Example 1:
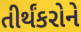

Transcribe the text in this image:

તીર્થંકરોને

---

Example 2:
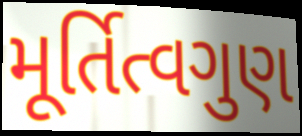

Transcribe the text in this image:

મૂર્તિત્વગુણ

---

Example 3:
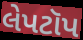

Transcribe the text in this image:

લેપટૉપ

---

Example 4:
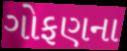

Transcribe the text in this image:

ગોફણના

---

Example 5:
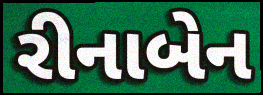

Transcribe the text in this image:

રીનાબેન